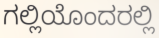
ಗಲ್ಲಿಯೊಂದರಲ್ಲಿ